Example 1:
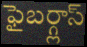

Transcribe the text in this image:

ఫైబర్గ్లాస్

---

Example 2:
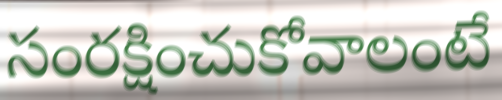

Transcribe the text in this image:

సంరక్షించుకోవాలంటే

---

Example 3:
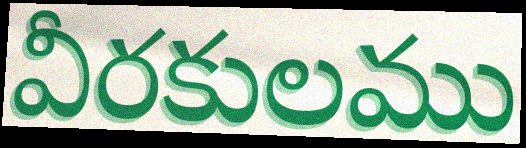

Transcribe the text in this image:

వీరకులము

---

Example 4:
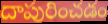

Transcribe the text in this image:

దాపురించడం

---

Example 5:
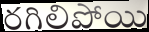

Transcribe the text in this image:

రగిలిపోయి